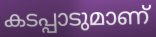
കടപ്പാടുമാണ്